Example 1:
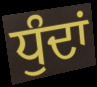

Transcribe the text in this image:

ਧੁੰਦਾਂ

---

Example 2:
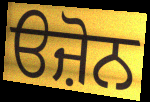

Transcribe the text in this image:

ੳਜ਼ੋਨ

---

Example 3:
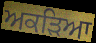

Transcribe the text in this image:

ਅਕੜਿਆ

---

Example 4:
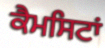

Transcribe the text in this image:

ਕੈਮਸਿਟਾਂ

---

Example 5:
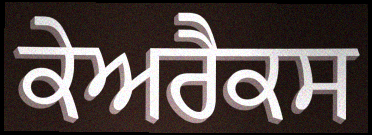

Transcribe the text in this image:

ਕੇਅਰੈਕਸ